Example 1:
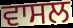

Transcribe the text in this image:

ਵਾਸਲ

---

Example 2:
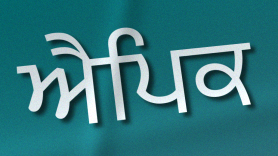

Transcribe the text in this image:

ਐਪਿਕ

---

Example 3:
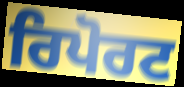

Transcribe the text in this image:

ਰਿਪੋਰਟ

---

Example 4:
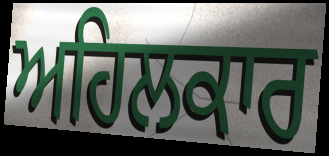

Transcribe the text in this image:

ਅਹਿਲਕਾਰ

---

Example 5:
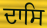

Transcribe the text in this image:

ਦਾਸਿ